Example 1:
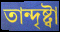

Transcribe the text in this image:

তান্দৃষ্ট্বা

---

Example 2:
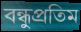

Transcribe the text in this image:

বন্ধুপ্রতিম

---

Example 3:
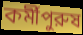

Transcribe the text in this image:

কর্মীপুরুষ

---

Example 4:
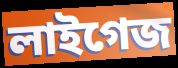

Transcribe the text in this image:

লাইগেজ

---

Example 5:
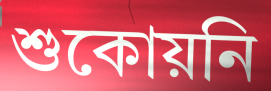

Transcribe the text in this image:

শুকোয়নি